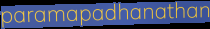
paramapadhanathan